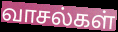
வாசல்கள்